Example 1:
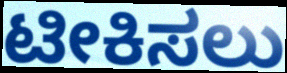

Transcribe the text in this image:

ಟೀಕಿಸಲು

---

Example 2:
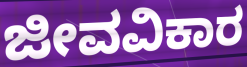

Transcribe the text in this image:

ಜೀವವಿಕಾರ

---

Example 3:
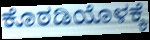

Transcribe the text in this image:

ಕೊಠಡಿಯೊಳಕ್ಕೆ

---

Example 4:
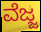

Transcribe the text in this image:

ವೆಜ್ಜ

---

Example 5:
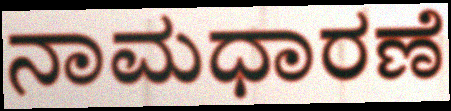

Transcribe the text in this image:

ನಾಮಧಾರಣೆ